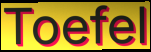
Toefel